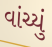
વાંચ્યું